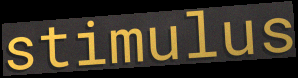
stimulus